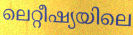
ലെറ്റീഷ്യയിലെ